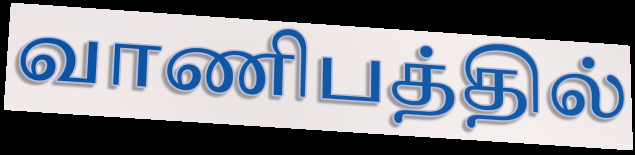
வாணிபத்தில்